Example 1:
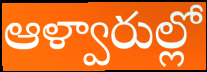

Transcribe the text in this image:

ఆళ్వారుల్లో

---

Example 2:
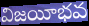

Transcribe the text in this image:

విజయీభవ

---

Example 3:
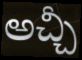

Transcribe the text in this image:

అచ్చీ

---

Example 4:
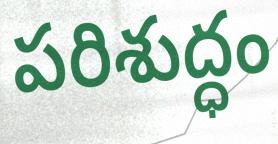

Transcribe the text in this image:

పరిశుద్ధం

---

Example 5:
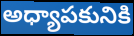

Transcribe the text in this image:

అధ్యాపకునికి